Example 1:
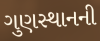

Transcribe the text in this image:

ગુણસ્થાનની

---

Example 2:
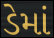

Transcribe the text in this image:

ડેમાં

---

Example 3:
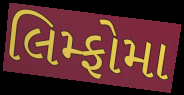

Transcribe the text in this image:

લિમ્ફોમા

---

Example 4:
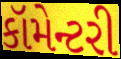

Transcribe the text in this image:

કૉમેન્ટરી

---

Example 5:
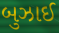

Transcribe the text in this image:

બુઝાઈ